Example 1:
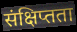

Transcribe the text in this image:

संक्षिप्तता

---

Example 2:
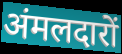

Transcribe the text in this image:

अंमलदारों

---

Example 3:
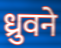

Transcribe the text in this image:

ध्रुवने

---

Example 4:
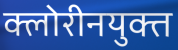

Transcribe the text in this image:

क्लोरीनयुक्त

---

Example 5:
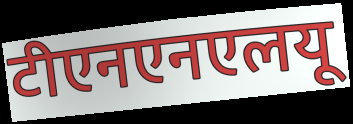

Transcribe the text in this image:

टीएनएनएलयू